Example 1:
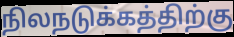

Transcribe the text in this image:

நிலநடுக்கத்திற்கு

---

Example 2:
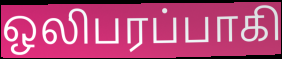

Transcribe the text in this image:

ஒலிபரப்பாகி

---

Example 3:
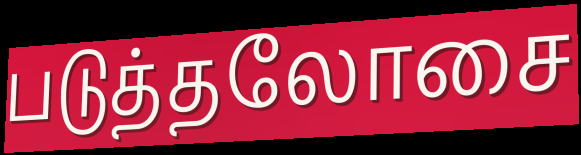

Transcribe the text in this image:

படுத்தலோசை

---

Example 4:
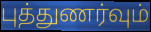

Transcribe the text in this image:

புத்துணர்வும்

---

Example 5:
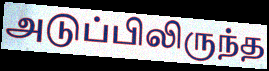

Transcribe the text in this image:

அடுப்பிலிருந்த